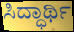
ಸಿದ್ಧಾರ್ಥಿ